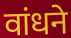
वांधने